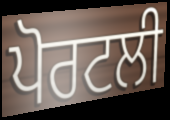
ਪੋਰਟਲੀ